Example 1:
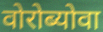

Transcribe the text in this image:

वोरोब्योवा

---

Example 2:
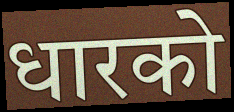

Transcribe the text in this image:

धारको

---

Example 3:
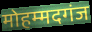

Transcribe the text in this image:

मोहम्मदगंज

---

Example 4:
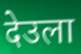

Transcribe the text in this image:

देउला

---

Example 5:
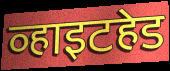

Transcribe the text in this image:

व्हाइटहेड